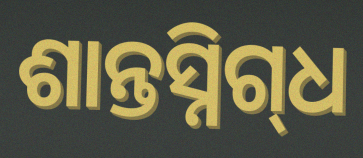
ଶାନ୍ତସ୍ନିଗ୍‌ଧ